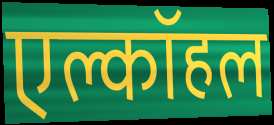
एल्कॉहल